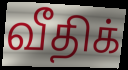
வீதிக்